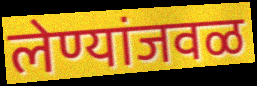
लेण्यांजवळ